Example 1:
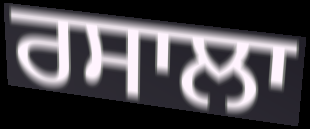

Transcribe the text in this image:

ਰਸਾਲਾ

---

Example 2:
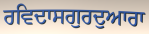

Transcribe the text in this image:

ਰਵਿਦਾਸਗੁਰਦੁਆਰਾ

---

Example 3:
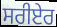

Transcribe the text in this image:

ਸਰੀਏਰ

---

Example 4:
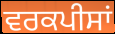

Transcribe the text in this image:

ਵਰਕਪੀਸਾਂ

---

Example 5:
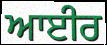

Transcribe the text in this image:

ਆਈਰ